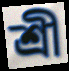
শ্ৰী